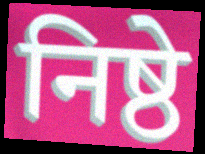
निष्ठे